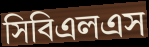
সিবিএলএস